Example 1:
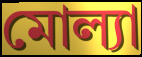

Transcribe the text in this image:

মোল্যা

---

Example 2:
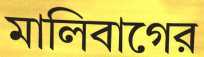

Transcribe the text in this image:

মালিবাগের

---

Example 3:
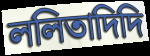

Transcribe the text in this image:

ললিতাদিদি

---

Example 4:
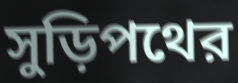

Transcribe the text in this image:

সুড়িপথের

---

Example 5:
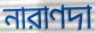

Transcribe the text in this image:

নারাণদা